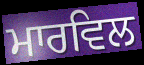
ਮਾਰਵਿਲ